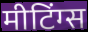
मीटिंग्स